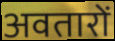
अवतारों